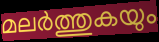
മലർത്തുകയും